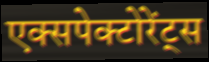
एक्सपेक्टोरेंट्स